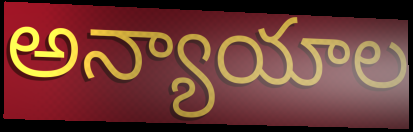
అన్యాయాల